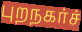
புறநகர்ச்